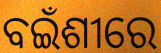
ବଇଁଶୀରେ